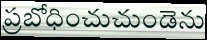
ప్రబోధించుచుండెను